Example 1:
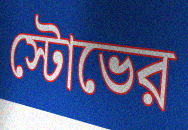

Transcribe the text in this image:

স্টোভের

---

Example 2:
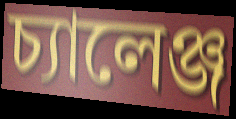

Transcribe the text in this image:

চ্যালেঞ্জ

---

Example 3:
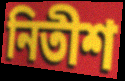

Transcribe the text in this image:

নিতীশ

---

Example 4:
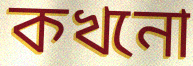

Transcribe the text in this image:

কখনো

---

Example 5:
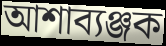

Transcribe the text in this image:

আশাব্যঞ্জক